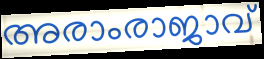
അരാംരാജാവ്